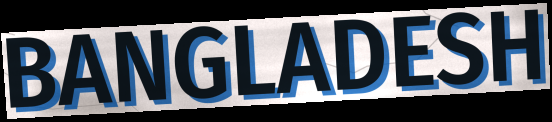
BANGLADESH